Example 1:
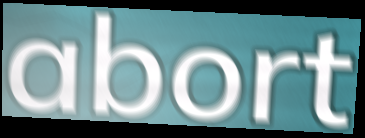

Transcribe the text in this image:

abort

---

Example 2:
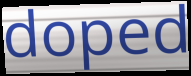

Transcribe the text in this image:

doped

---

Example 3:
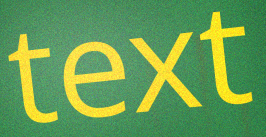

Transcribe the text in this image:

text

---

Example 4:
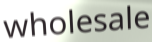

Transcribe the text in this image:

wholesale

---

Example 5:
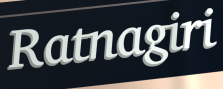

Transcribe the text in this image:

Ratnagiri